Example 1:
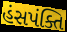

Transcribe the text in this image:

હંસપંક્તિ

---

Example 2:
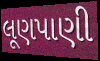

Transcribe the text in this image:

લૂણપાણી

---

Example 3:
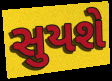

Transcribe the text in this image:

સુયશે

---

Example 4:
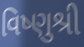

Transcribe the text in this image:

વિષ્ણુશ્રી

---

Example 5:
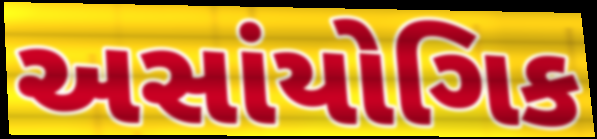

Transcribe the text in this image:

અસાંયોગિક